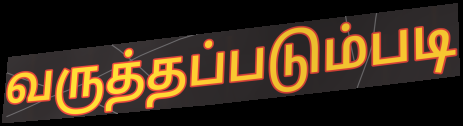
வருத்தப்படும்படி